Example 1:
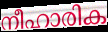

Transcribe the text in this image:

നീഹാരിക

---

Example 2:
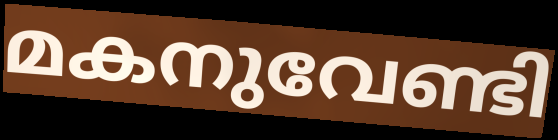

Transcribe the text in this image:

മകനുവേണ്ടി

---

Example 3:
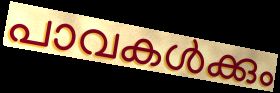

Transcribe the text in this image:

പാവകൾക്കും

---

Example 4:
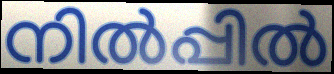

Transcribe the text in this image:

നിൽപ്പിൽ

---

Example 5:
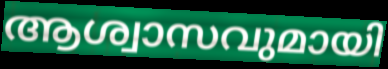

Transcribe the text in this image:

ആശ്വാസവുമായി